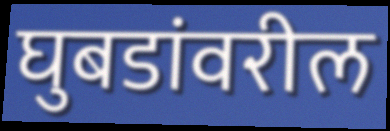
घुबडांवरील